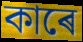
কাৰে